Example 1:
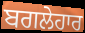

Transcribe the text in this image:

ਬਗਲੇਹਾਰ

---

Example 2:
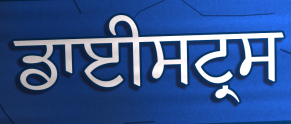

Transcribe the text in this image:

ਡਾਈਸਟ੍ਰਸ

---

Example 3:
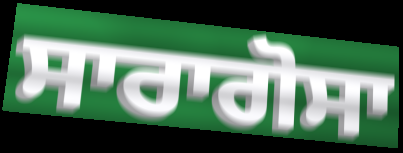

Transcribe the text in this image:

ਸਾਰਾਗੋਸਾ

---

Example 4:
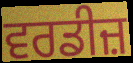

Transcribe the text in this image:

ਵਰਡੀਜ਼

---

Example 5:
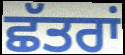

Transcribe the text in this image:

ਛੱਤਰਾਂ